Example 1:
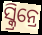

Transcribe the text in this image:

ସ୍କ୍ରିନ୍ରେ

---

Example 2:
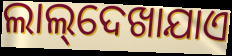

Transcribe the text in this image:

ଲାଲ୍‌ଦେଖାଯାଏ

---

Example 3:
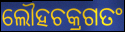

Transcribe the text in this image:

ଲୌହଚକ୍ରଗତଂ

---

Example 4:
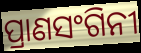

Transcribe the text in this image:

ପ୍ରାଣସଂଗିନୀ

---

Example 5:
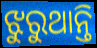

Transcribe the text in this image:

ଝୁରୁଥାନ୍ତି